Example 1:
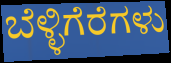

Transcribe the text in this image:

ಬೆಳ್ಳಿಗೆರೆಗಳು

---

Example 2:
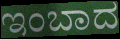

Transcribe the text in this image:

ಇಂಬಾದ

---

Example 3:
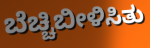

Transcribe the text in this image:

ಬೆಚ್ಚಿಬೀಳಿಸಿತು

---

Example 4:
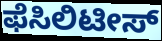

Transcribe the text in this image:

ಫೆಸಿಲಿಟೀಸ್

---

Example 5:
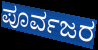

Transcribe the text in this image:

ಪೂರ್ವಜರ